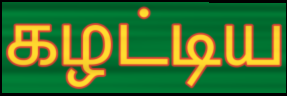
கழட்டிய